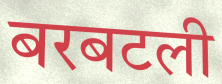
बरबटली